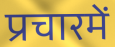
प्रचारमें